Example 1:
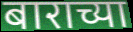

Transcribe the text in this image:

बाराच्या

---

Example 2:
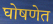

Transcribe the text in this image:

घोषणेत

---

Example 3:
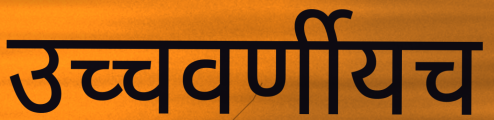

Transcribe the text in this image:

उच्चवर्णीयच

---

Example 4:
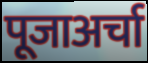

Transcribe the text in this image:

पूजाअर्चा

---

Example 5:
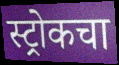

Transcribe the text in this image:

स्ट्रोकचा